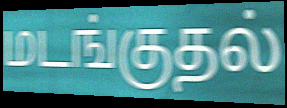
மடங்குதல்